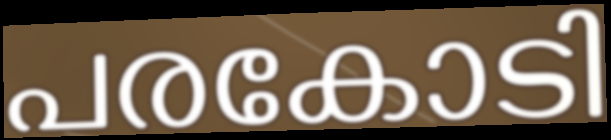
പരകോടി